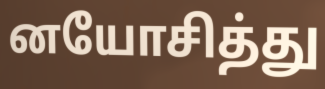
னயோசித்து